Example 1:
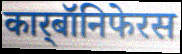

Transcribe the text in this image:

कार्‌बॉनिफेरस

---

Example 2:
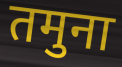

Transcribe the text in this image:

तमुना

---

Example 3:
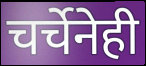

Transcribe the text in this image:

चर्चेनेही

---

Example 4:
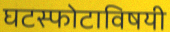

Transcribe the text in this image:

घटस्फोटाविषयी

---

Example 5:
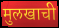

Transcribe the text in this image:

मुलखाची